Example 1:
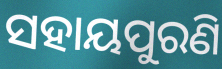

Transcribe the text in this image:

ସହାୟପୁରଣି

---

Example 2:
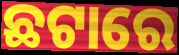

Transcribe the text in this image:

ଛଟାରେ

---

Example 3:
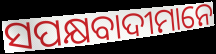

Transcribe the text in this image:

ସପକ୍ଷବାଦୀମାନେ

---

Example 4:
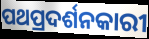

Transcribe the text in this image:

ପଥପ୍ରଦର୍ଶନକାରୀ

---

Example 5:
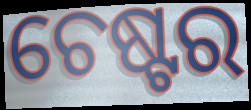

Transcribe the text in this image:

ଚେଷ୍ଟର